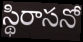
స్థిరాసనో